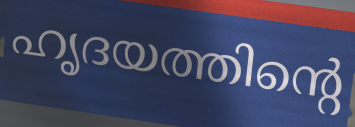
ഹൃദയത്തിന്റെ